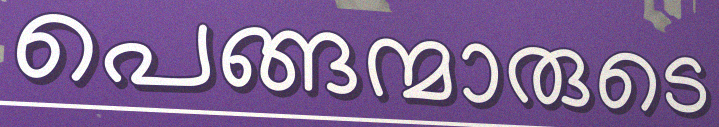
പെങ്ങന്മാരുടെ